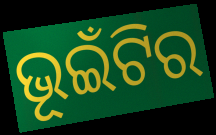
ଭୂଇଁଟିର